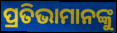
ପ୍ରତିଭାମାନଙ୍କୁ